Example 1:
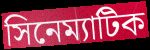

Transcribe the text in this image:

সিনেম্যাটিক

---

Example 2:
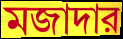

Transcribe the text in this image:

মজাদার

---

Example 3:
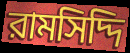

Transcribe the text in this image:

রামসিদ্দি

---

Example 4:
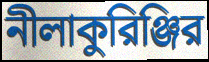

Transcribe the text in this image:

নীলাকুরিঞ্জির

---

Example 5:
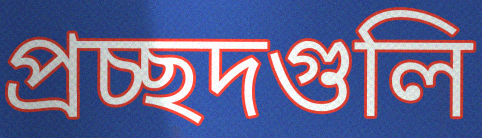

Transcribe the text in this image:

প্রচ্ছদগুলি